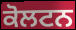
ਕੋਲਟਨ